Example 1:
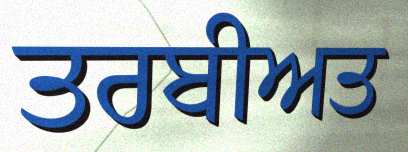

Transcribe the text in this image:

ਤਰਬੀਅਤ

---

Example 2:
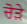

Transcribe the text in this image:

ਚੋੜੇ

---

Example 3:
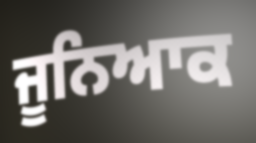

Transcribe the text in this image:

ਜੂਨਿਆਕ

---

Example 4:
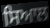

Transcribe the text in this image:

ਸਿਆਲ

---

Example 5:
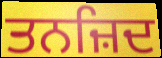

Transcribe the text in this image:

ਤਨਜ਼ਿਦ